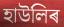
হাউলিৰ